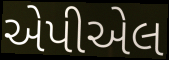
એપીએલ